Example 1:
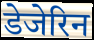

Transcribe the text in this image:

डेजेरिन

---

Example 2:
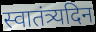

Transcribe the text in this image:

स्वातंत्र्यदिन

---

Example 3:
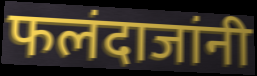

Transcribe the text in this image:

फलंदाजांनी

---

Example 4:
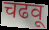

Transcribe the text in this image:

चढवू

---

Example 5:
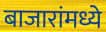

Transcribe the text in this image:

बाजारांमध्ये